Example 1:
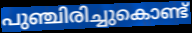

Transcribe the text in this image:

പുഞ്ചിരിച്ചുകൊണ്ട്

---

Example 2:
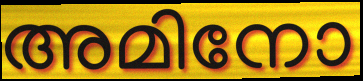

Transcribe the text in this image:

അമിനോ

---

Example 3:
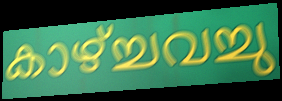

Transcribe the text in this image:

കാഴ്ച്ചവച്ചു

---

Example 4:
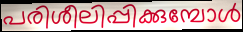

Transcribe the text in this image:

പരിശീലിപ്പിക്കുമ്പോൾ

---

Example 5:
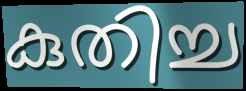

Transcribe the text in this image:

കുതിച്ച